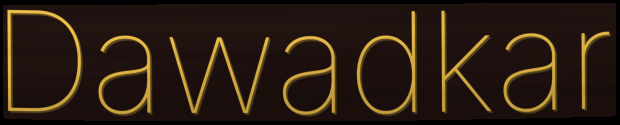
Dawadkar